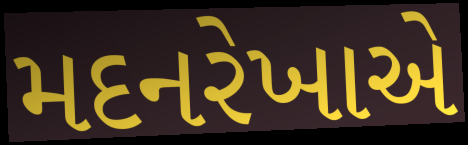
મદનરેખાએ